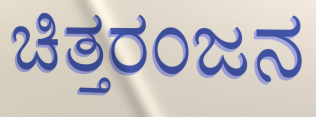
ಚಿತ್ತರಂಜನ